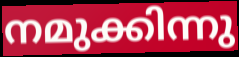
നമുക്കിന്നു